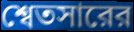
শ্বেতসারের